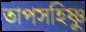
তাপসহিষ্ণু